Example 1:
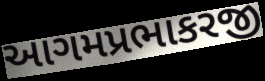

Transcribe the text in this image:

આગમપ્રભાકરજી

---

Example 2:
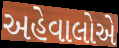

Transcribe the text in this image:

અહેવાલોએ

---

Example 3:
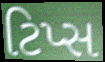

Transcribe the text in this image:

ટિપ્સ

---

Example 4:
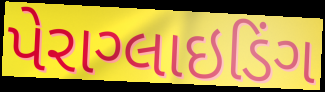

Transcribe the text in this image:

પેરાગ્લાઇડિંગ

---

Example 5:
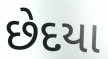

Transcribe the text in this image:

છેદયા